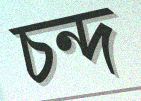
চন্দ